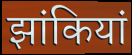
झांकियां